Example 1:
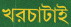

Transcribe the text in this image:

খরচাটাই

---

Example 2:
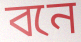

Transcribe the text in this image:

বনে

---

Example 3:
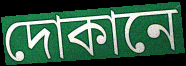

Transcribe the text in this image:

দোকানে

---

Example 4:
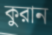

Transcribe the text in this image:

কুরান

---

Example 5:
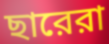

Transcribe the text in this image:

ছারেরা